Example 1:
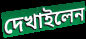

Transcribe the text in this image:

দেখাইলেন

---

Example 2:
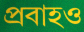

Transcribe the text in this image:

প্রবাহও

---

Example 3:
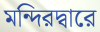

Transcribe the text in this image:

মন্দিরদ্বারে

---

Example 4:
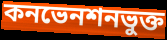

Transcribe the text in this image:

কনভেনশনভুক্ত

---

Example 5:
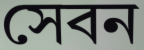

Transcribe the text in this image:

সেবন